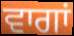
ਵਾਗਾਂ